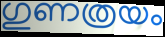
ഗുണത്രയം